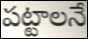
పట్టాలనే